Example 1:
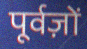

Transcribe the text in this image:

पूर्वज़ों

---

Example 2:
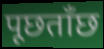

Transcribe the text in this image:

पूछताँछ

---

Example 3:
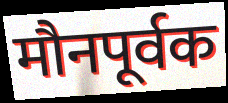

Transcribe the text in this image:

मौनपूर्वक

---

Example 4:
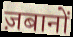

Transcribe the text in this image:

ज़बानों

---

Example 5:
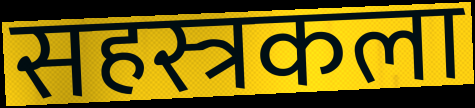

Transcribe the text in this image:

सहस्त्रकला